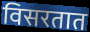
विसरतात